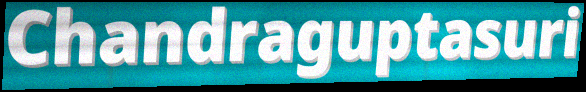
Chandraguptasuri